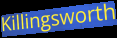
Killingsworth